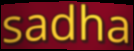
sadha